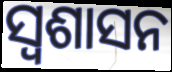
ସ୍ବଶାସନ